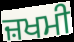
ਜ਼ਖਮੀ